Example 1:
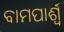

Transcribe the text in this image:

ବାମପାର୍ଶ୍ଵ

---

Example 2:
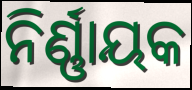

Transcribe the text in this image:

ନିର୍ଣ୍ଣାୟକ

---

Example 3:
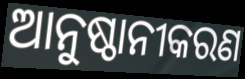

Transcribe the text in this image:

ଆନୁଷ୍ଠାନୀକରଣ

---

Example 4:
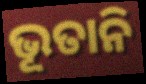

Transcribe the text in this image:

ଭୂତାନି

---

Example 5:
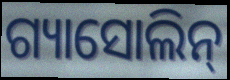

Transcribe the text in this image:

ଗ୍ୟାସୋଲିନ୍